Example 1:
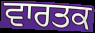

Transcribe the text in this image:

ਵਾਰਤਕ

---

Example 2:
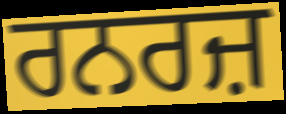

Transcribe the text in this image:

ਰਨਰਜ਼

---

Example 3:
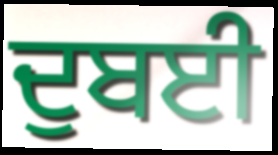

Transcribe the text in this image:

ਦੁਬਈ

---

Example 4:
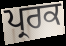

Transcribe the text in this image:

ਪ੍ਰਰਕ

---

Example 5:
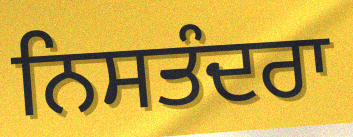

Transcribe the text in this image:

ਨਿਸਤੰਦਰਾ